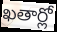
ఖతార్లో